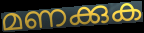
മണക്കുക